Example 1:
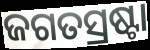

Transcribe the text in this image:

ଜଗତସ୍ରଷ୍ଟା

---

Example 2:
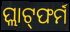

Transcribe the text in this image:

ପ୍ଲାଟ୍‌ଫର୍ମ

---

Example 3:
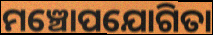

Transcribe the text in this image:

ମଞ୍ଚୋପଯୋଗିତା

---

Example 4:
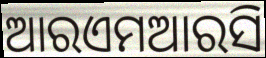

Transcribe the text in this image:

ଆରଏମଆରସି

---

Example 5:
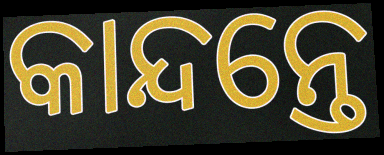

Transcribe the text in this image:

କାନ୍ଦନ୍ତେ